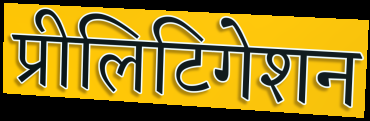
प्रीलिटिगेशन